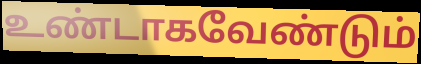
உண்டாகவேண்டும்